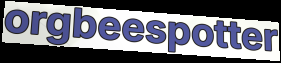
orgbeespotter